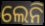
ଲେନି